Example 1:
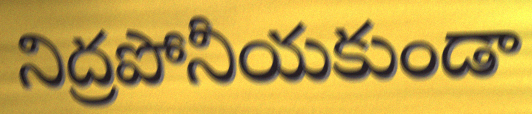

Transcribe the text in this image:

నిద్రపోనీయకుండా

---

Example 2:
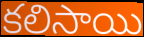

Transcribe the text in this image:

కలిసాయి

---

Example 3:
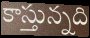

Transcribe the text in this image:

కాస్తున్నది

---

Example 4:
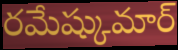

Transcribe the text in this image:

రమేష్కుమార్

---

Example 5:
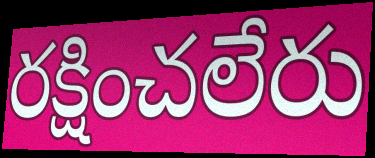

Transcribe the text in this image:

రక్షించలేరు